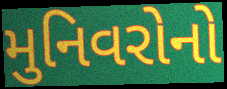
મુનિવરોનો